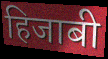
हिजाबी